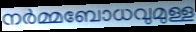
നർമ്മബോധവുമുള്ള